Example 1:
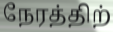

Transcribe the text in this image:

நேரத்திற்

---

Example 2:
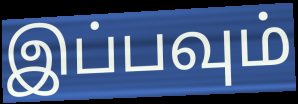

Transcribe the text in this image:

இப்பவும்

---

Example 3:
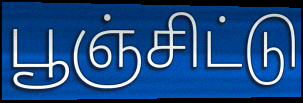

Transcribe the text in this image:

பூஞ்சிட்டு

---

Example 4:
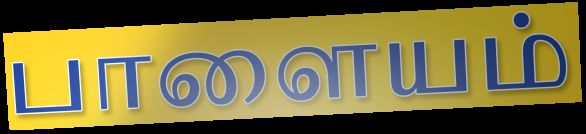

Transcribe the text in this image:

பாளையம்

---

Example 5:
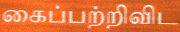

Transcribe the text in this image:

கைப்பற்றிவிட